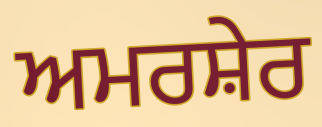
ਅਮਰਸ਼ੇਰ